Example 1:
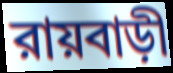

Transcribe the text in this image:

রায়বাড়ী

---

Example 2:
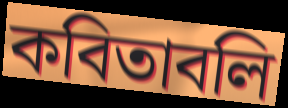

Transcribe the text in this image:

কবিতাবলি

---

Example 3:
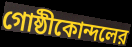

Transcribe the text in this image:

গোষ্ঠীকোন্দলের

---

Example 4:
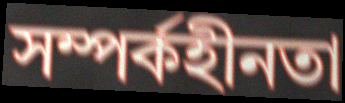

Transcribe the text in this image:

সম্পর্কহীনতা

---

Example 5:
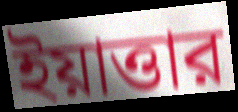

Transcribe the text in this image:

ইয়াত্তার